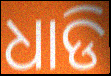
ଧାଡି